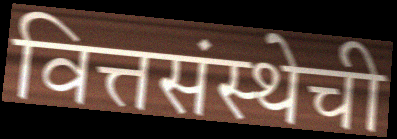
वित्तसंस्थेची